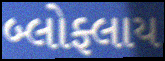
બ્લોફ્લાય